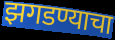
झगडण्याचा